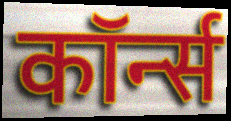
कॉर्न्स